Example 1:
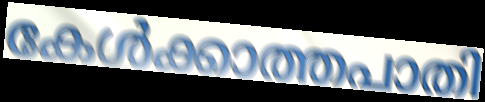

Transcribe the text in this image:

കേൾക്കാത്തപാതി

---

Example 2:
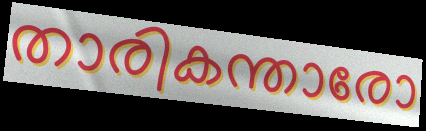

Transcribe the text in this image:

താരികന്താരോ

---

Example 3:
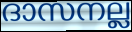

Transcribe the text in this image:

ദാസനല്ല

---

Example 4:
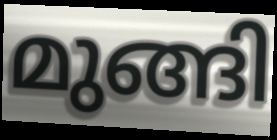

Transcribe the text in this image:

മുങ്ങി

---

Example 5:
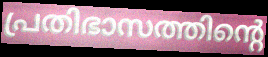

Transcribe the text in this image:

പ്രതിഭാസത്തിന്റെ